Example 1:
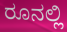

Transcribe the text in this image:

ರೂನಲ್ಲಿ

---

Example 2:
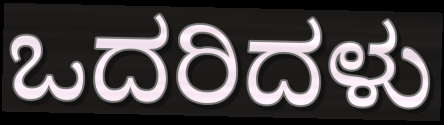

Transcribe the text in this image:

ಒದರಿದಳು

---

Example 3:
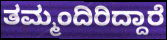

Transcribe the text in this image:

ತಮ್ಮಂದಿರಿದ್ದಾರೆ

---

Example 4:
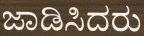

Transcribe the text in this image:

ಜಾಡಿಸಿದರು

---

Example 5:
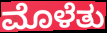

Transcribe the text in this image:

ಮೊಳೆತು